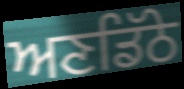
ਅਣਡਿੱਠੇ